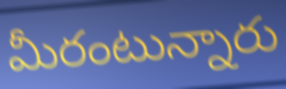
మీరంటున్నారు